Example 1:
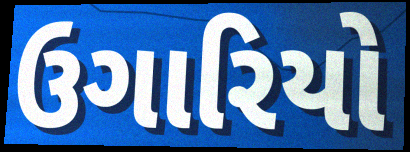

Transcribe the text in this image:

ઉગારિયો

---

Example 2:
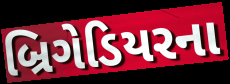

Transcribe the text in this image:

બ્રિગેડિયરના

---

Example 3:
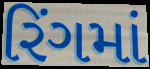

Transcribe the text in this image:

રિંગમાં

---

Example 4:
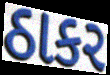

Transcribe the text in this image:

ઠાકર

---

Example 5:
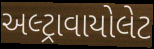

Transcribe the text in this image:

અલ્ટ્રાવાયોલેટ